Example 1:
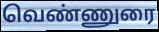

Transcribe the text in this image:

வெண்ணுரை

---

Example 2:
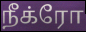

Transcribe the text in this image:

நீக்ரோ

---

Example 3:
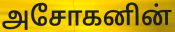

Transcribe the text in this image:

அசோகனின்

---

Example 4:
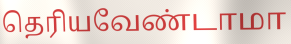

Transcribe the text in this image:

தெரியவேண்டாமா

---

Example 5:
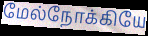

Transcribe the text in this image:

மேல்நோக்கியே